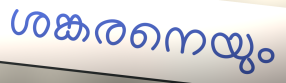
ശങ്കരനെയും